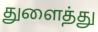
துளைத்து